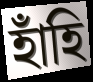
হাঁহি